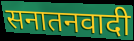
सनातनवादी